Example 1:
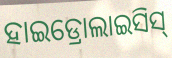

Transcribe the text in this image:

ହାଇଡ୍ରୋଲାଇସିସ୍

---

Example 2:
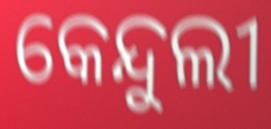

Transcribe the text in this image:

କେନ୍ଦୁଲୀ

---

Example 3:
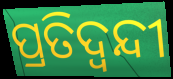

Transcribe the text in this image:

ପ୍ରତିଦ୍ଵନ୍ଦୀ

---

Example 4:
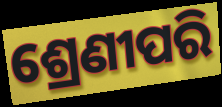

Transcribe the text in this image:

ଶ୍ରେଣୀପରି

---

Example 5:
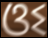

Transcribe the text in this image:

ଓଽ